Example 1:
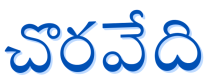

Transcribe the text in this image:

చొరవేది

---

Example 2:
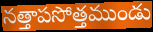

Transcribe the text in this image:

నత్తాపసోత్తముండు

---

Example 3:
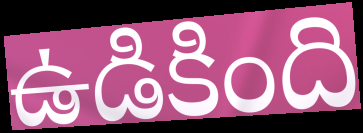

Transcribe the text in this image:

ఉడికింది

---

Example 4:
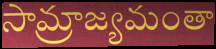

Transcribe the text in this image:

సామ్రాజ్యమంతా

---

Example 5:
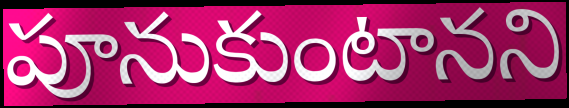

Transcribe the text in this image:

పూనుకుంటానని